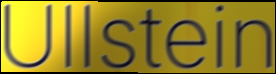
Ullstein